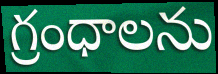
గ్రంధాలను